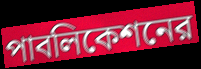
পাবলিকেশনের